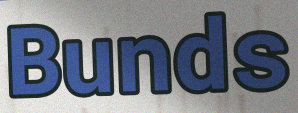
Bunds